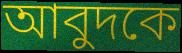
আবুদকে